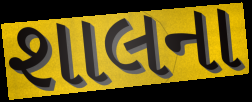
શાલના